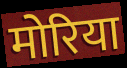
मोरिया